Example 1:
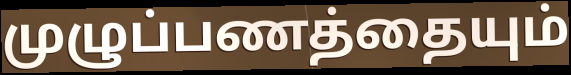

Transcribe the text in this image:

முழுப்பணத்தையும்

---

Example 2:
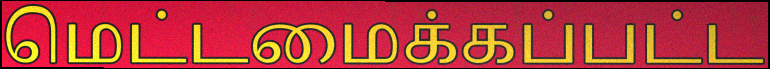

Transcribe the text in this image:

மெட்டமைக்கப்பட்ட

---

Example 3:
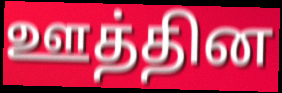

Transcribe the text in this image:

ஊத்தின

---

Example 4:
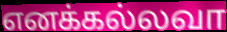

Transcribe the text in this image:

எனக்கல்லவா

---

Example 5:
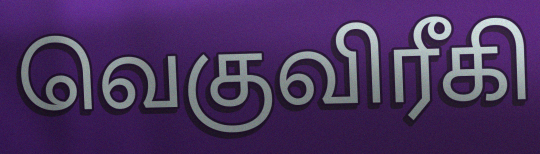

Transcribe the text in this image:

வெகுவிரீகி